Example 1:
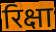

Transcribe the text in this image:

रिक्षा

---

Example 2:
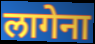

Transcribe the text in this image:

लागेना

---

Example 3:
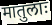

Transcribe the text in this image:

मातुलाः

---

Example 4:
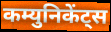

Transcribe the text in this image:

कम्युनिकेंट्स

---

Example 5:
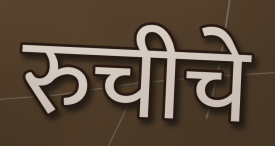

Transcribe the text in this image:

रुचीचे